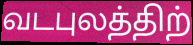
வடபுலத்திற்